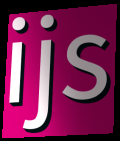
ijs